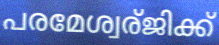
പരമേശ്വര്ജിക്ക്